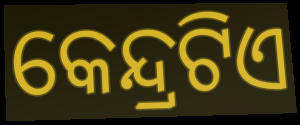
କେନ୍ଦ୍ରଟିଏ